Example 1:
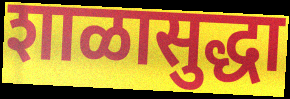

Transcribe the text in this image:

शाळासुद्धा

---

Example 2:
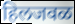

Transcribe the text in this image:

हिलजवळ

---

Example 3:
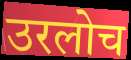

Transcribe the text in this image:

उरलोच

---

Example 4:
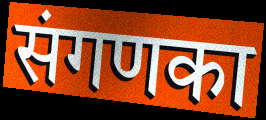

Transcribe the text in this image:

संगणका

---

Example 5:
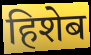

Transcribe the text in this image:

हिशेब